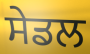
ਸੇਡਲ